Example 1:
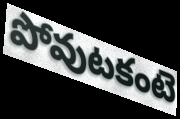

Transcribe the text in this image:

పోవుటకంటె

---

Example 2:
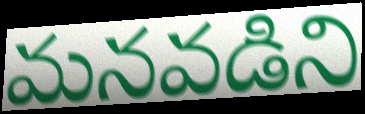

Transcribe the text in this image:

మనవడిని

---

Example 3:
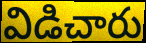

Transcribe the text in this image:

విడిచారు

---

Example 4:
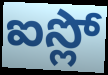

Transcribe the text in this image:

ఐస్లో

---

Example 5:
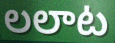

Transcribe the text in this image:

లలాట